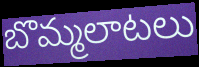
బొమ్మలాటలు